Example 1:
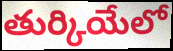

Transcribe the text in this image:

తుర్కియేలో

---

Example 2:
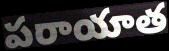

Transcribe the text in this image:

పరాయాత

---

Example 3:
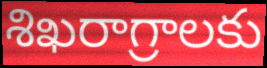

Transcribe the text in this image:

శిఖరాగ్రాలకు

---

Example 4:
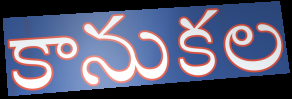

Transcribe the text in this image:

కానుకల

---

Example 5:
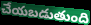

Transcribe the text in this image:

చేయబడుతుంది